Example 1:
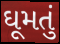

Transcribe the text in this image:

ઘૂમતું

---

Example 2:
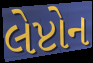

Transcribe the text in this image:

લેપ્ટોન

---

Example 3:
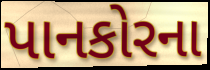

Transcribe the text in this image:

પાનકોરના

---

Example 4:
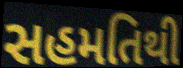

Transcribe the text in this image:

સહમતિથી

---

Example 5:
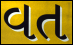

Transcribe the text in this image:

વત